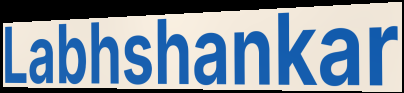
Labhshankar